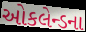
ઓકલેન્ડના